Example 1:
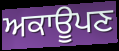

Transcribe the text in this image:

ਅਕਾਊਪਣ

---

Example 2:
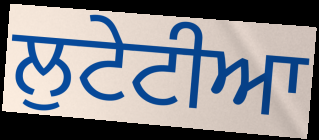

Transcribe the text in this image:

ਲੁਟੇਟੀਆ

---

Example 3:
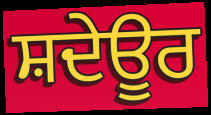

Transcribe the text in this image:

ਸ਼ਦੇਊਰ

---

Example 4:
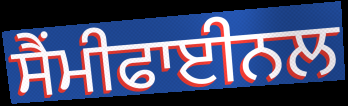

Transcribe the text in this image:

ਸੈਂਮੀਫਾਈਨਲ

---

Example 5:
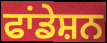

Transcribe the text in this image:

ਫਾਂਡੇਸ਼ਨ